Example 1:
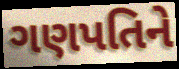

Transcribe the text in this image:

ગણપતિને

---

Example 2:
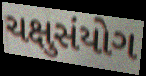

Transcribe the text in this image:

ચક્ષુસંયોગ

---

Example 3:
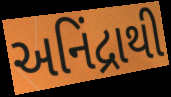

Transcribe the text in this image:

અનિંદ્રાથી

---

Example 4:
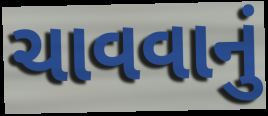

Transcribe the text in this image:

ચાવવાનું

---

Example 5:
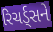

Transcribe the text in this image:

રિચર્ડ્સને